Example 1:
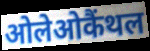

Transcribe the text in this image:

ओलेओकैंथल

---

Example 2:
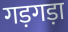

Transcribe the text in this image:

गड़गड़ा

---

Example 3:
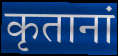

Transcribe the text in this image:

कृतानां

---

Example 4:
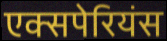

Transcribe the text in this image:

एक्सपेरियंस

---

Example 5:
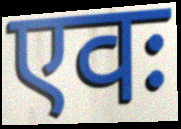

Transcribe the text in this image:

एवः